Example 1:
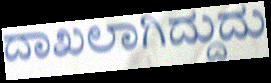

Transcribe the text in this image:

ದಾಖಲಾಗಿದ್ದುದು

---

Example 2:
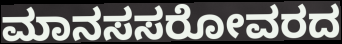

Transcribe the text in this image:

ಮಾನಸಸರೋವರದ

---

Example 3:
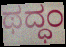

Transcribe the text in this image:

ಥದ್ಧಂ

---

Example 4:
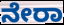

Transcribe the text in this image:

ನೇರಾ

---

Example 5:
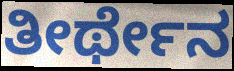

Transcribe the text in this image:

ತೀರ್ಥೇನ